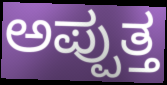
ಅಪ್ಪುತ್ತ